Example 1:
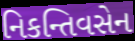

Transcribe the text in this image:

નિકન્તિવસેન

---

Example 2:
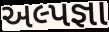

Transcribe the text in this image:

અલ્પજ્ઞા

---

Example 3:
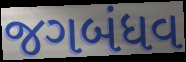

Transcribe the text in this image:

જગબંધવ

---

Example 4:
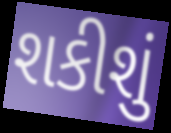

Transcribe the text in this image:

શકીશું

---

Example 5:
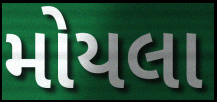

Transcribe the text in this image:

મોયલા